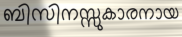
ബിസിനസ്സുകാരനായ